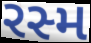
રસ્મ